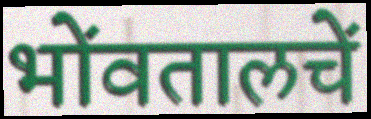
भोंवतालचें